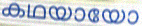
കഥയായോ